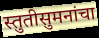
स्तुतीसुमनांचा